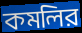
কমলির